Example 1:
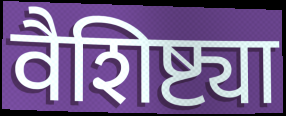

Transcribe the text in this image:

वैशिष्ट्या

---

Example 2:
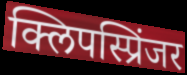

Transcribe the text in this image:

क्लिपस्प्रिंजर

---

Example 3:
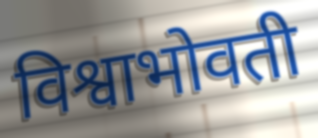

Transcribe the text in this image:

विश्वाभोवती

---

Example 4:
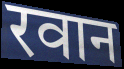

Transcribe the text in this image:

रवान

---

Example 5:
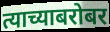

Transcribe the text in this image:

त्याच्याबरोबर